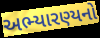
અભ્યારણ્યનો